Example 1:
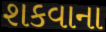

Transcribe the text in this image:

શકવાના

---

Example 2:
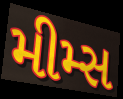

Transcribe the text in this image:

મીમ્સ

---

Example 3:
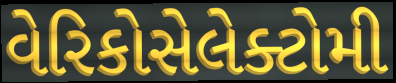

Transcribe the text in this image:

વેરિકોસેલેક્ટોમી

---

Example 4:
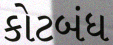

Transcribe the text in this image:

કોટબંધ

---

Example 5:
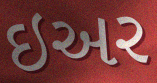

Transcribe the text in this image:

ઇઅર